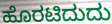
ಹೊರಟಿದುದು